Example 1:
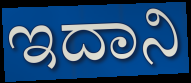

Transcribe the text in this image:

ಇದಾನಿ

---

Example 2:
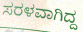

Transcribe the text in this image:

ಸರಳವಾಗಿದ್ದ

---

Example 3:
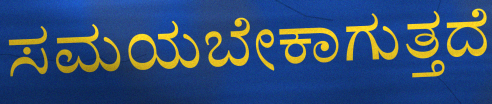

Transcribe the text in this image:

ಸಮಯಬೇಕಾಗುತ್ತದೆ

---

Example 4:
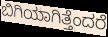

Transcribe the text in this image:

ಬಿಗಿಯಾಗಿತ್ತೆಂದರೆ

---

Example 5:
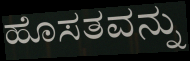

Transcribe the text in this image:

ಹೊಸತವನ್ನು